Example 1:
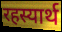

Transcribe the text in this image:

रहस्यार्थ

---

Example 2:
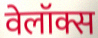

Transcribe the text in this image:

वेलॉक्स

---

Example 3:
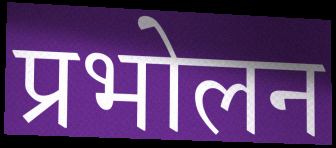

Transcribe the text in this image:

प्रभोलन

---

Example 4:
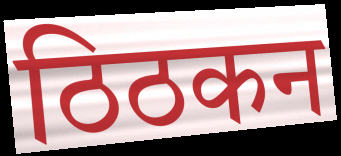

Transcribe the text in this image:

ठिठकन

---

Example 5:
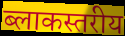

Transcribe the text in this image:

ब्लाकस्तरीय